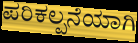
ಪರಿಕಲ್ಪನೆಯಾಗಿ